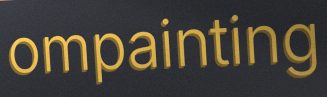
ompainting